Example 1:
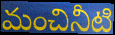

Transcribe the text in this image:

మంచినీటి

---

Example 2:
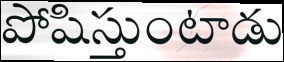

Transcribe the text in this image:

పోషిస్తుంటాడు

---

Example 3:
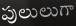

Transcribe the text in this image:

పులులుగా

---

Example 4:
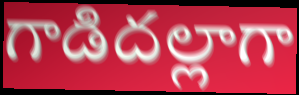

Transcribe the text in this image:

గాడిదల్లాగా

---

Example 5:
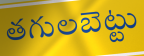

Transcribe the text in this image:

తగులబెట్టు